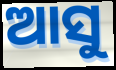
ଆସୁ